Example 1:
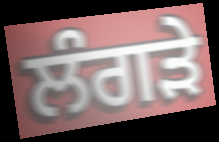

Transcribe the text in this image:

ਲੰਗੜੇ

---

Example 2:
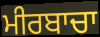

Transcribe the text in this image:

ਮੀਰਬਾਚਾ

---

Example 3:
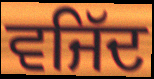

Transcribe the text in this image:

ਵਜਿੱਦ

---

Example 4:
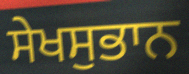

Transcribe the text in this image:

ਸੇਖਸੁਭਾਨ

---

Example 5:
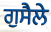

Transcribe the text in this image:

ਗੁਸੈਲੇ